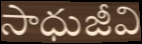
సాధుజీవి